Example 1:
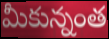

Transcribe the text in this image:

మీకున్నంత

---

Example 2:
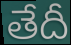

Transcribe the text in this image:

తేదీ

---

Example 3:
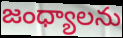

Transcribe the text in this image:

జంధ్యాలను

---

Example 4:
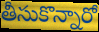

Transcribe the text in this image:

తీసుకొన్నారో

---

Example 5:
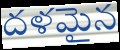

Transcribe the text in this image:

దళమైన